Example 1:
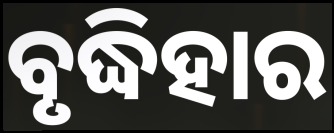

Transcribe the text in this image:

ବୃଦ୍ଧିହାର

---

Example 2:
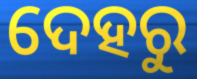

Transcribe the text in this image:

ଦେହରୁ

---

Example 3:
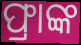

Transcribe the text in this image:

ଫ୍ରାଙ୍କ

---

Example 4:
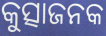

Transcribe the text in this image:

କୁତ୍ସାଜନକ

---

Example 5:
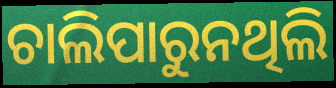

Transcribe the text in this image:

ଚାଲିପାରୁନଥିଲି